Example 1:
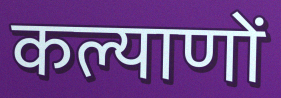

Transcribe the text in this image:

कल्याणों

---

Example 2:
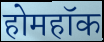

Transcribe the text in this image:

होमहॉक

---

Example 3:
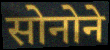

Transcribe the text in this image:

सोनोने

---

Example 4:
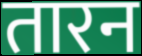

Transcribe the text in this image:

तारन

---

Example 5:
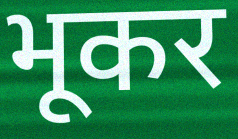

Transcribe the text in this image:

भूकर